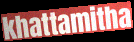
khattamitha